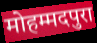
मोहम्मदपुरा